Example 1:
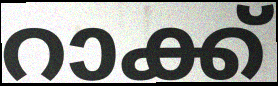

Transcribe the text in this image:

റാക്ക്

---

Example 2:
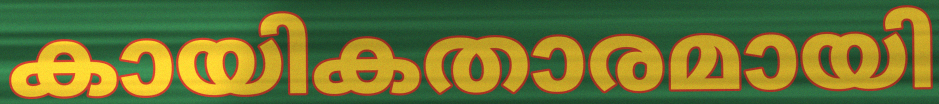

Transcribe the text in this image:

കായികതാരമായി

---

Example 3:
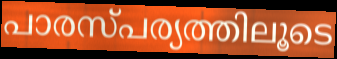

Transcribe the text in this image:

പാരസ്പര്യത്തിലൂടെ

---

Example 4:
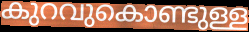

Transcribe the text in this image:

കുറവുകൊണ്ടുള്ള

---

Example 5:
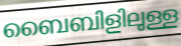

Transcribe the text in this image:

ബൈബിളിലുള്ള